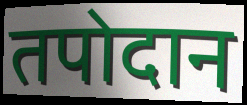
तपोदान